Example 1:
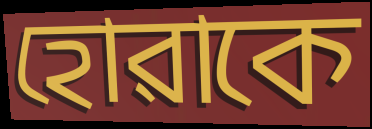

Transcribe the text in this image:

হোৱাকে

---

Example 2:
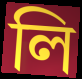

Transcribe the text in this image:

লি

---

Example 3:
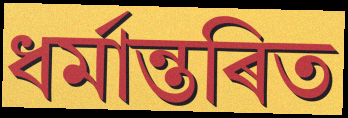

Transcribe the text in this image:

ধৰ্মান্তৰিত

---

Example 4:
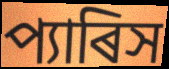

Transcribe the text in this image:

প্যাৰিস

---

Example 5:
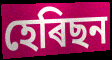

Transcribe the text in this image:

হেৰিছন